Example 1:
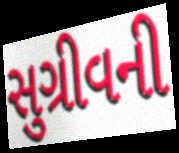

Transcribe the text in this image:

સુગ્રીવની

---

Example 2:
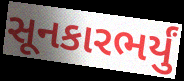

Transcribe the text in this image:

સૂનકારભર્યું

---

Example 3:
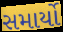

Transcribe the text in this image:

સમાર્યો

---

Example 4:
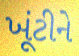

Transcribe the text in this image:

ખૂંટીને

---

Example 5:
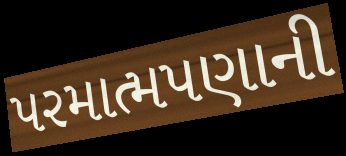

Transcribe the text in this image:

પરમાત્મપણાની